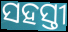
ସହସ୍ତୀ